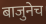
बाजुनेच